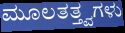
ಮೂಲತತ್ತ್ವಗಳು